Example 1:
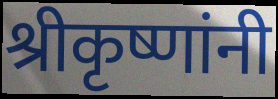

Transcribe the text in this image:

श्रीकृष्णांनी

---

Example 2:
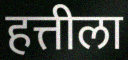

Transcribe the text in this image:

हत्तीला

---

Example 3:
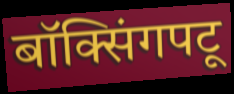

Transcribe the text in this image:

बॉक्सिंगपटू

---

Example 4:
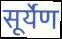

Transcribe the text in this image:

सूर्ये॑ण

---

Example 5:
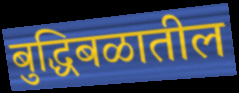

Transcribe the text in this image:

बुद्धिबळातील